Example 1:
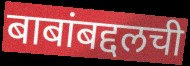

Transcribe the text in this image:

बाबांबद्दलची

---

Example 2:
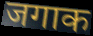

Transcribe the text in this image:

जगाक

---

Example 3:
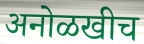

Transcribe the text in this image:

अनोळखीच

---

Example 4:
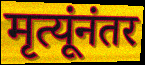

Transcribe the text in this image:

मृत्यूंनंतर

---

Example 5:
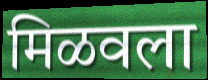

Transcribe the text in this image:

मिळवला